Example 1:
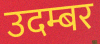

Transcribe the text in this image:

उदम्बर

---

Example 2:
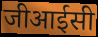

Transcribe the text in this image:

जीआईसी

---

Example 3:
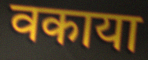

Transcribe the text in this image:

वकाया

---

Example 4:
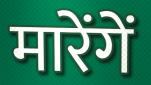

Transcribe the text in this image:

मारेंगें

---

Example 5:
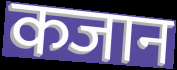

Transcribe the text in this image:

कजान